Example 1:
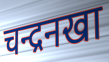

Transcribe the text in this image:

चन्द्रनखा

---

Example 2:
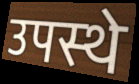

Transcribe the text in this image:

उपस्थे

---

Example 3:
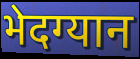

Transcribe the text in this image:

भेदग्यान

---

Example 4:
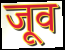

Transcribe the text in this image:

जूव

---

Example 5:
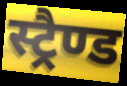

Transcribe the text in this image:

स्ट्रैण्ड